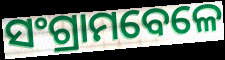
ସଂଗ୍ରାମବେଳେ